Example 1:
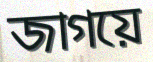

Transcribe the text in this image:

জাগয়ে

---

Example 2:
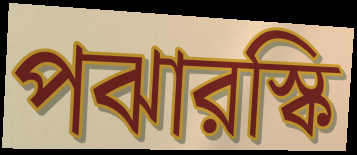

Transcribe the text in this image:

পঝারস্কি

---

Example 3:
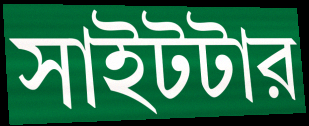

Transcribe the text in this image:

সাইটটার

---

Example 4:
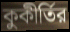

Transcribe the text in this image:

কুকীর্তির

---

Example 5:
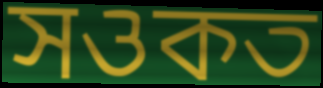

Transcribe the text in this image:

সওকত